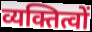
व्यक्तित्वों